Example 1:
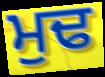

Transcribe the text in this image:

ਮੁਢ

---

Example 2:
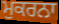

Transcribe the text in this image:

ਮੁਕਰਨਾ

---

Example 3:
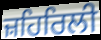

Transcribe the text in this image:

ਜ਼ਹਿਰਿਲੀ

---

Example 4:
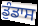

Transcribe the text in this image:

ਡੁੰਡਾਸ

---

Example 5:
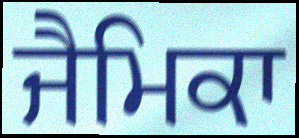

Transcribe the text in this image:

ਜੈਮਿਕਾ